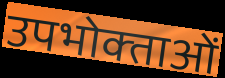
उपभोक्‍ताओं